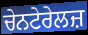
ਚੇਨਟੇਰੇਲਜ਼